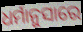
ଧର୍ମାନୁସାରେ